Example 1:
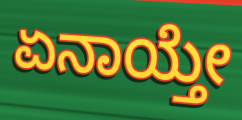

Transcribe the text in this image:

ಏನಾಯ್ತೇ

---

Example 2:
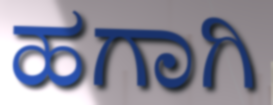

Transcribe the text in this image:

ಹಗಾಗಿ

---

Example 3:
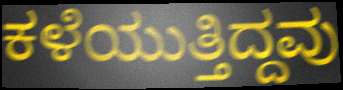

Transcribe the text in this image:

ಕಳೆಯುತ್ತಿದ್ದವು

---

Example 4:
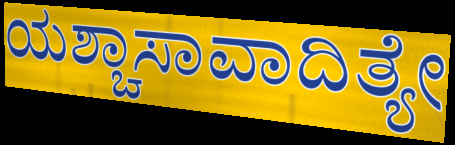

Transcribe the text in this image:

ಯಶ್ಚಾಸಾವಾದಿತ್ಯೇ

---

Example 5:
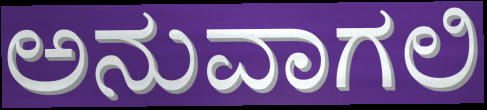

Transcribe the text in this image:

ಅನುವಾಗಲಿ